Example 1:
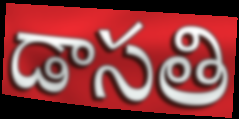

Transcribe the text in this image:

డాసతి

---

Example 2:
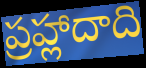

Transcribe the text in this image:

ప్రహ్లాదాది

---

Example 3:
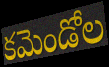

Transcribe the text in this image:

కమెండోల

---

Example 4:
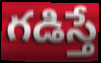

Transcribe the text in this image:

గడిస్తే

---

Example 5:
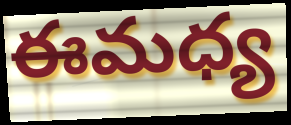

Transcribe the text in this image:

ఈమధ్య